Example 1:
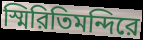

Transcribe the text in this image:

স্মিরিতিমন্দিরে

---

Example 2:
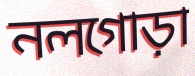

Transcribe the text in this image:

নলগোড়া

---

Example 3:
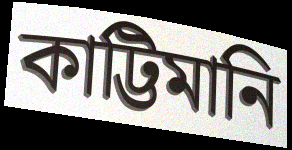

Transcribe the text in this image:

কাট্টিমানি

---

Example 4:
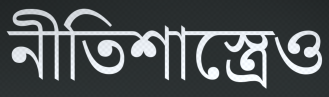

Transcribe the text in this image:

নীতিশাস্ত্রেও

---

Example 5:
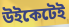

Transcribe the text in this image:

উইকেটেই